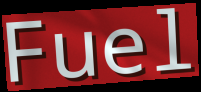
Fuel